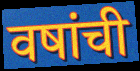
वषांची